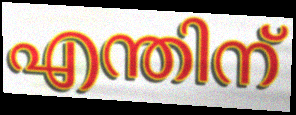
എന്തിന്